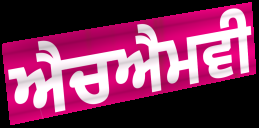
ਐਚਐਮਵੀ